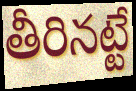
తీరినట్టే